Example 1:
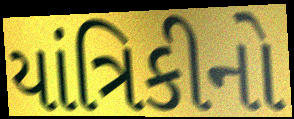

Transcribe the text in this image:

યાંત્રિકીનો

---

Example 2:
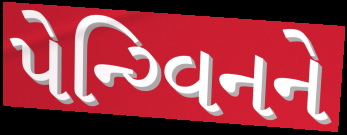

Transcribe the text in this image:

પેન્ગ્વિનને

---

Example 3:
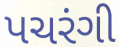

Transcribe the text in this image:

પચરંગી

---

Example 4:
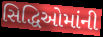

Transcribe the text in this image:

સિદ્ધિઓમાંની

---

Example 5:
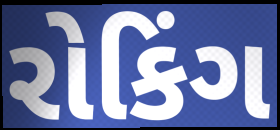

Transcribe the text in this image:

રોકિંગ